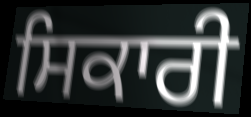
ਸਿਕਾਰੀ